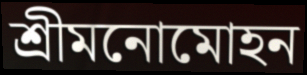
শ্রীমনোমোহন